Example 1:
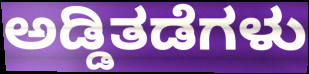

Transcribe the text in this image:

ಅಡ್ಡಿತಡೆಗಳು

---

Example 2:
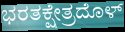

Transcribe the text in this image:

ಭರತಕ್ಷೇತ್ರದೊಳ್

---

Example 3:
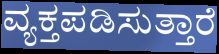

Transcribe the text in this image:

ವ್ಯಕ್ತಪಡಿಸುತ್ತಾರೆ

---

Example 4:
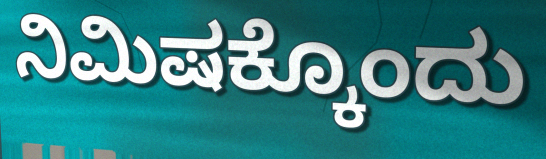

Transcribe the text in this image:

ನಿಮಿಷಕ್ಕೊಂದು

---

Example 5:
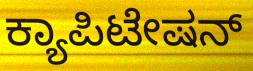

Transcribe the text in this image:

ಕ್ಯಾಪಿಟೇಷನ್